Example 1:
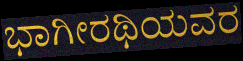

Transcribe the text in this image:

ಭಾಗೀರಥಿಯವರ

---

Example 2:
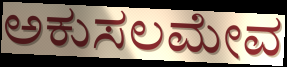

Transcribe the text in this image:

ಅಕುಸಲಮೇವ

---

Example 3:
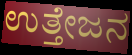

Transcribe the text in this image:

ಉತ್ತೇಜನ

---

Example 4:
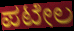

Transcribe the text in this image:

ಪಟೇಲ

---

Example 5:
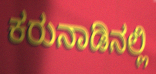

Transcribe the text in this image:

ಕರುನಾಡಿನಲ್ಲಿ